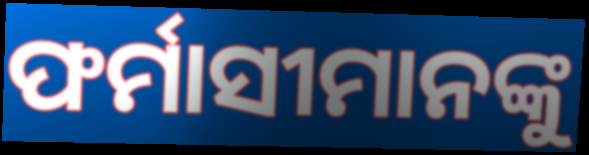
ଫର୍ମାସୀମାନଙ୍କୁ